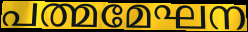
പത്മമേഘന